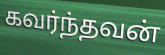
கவர்ந்தவன்